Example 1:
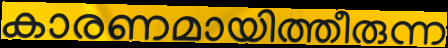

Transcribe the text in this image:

കാരണമായിത്തീരുന്ന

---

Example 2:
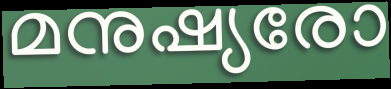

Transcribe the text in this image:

മനുഷ്യരോ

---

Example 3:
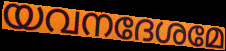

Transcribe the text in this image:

യവനദേശമേ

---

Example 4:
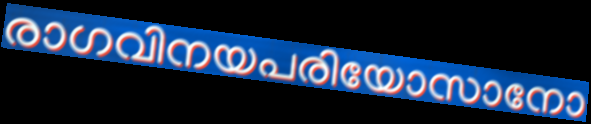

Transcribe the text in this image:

രാഗവിനയപരിയോസാനോ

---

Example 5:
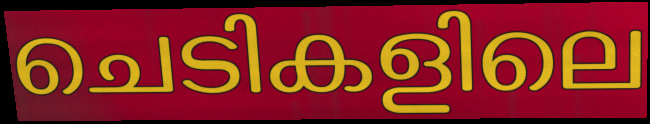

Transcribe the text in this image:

ചെടികളിലെ